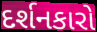
દર્શનકારો